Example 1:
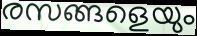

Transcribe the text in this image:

രസങ്ങളെയും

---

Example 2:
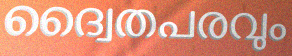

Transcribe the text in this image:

ദ്വൈതപരവും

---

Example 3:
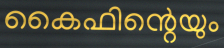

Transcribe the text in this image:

കൈഫിന്റെയും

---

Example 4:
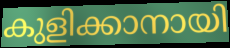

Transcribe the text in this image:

കുളിക്കാനായി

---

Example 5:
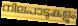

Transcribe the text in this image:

നിലപാടുകളും